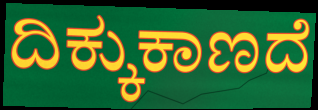
ದಿಕ್ಕುಕಾಣದೆ